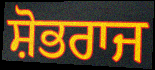
ਸ਼ੋਭਰਾਜ